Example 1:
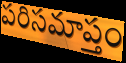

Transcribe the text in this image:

పరిసమాప్తం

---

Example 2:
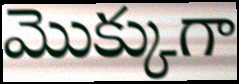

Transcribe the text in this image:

మొక్కుగా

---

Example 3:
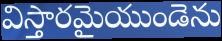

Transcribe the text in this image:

విస్తారమైయుండెను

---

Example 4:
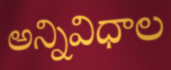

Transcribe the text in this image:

అన్నివిధాల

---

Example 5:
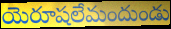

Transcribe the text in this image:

యెరూషలేమందుండు